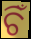
ଚିଁ